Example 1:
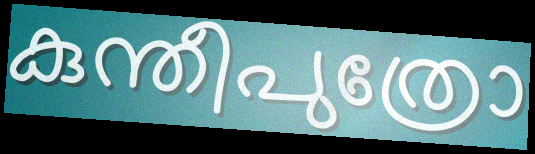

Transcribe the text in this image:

കുന്തീപുത്രോ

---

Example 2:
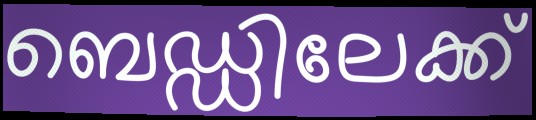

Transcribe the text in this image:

ബെഡ്ഡിലേക്ക്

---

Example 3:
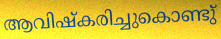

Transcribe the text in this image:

ആവിഷ്കരിച്ചുകൊണ്ടു്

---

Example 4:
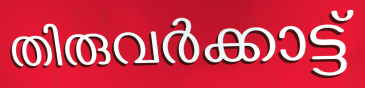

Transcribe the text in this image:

തിരുവർക്കാട്ട്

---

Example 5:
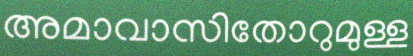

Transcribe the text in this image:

അമാവാസിതോറുമുള്ള